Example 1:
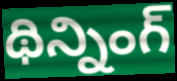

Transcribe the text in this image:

థిన్నింగ్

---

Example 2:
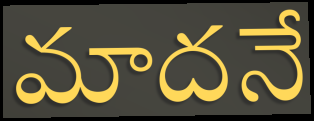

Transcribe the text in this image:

మాదనే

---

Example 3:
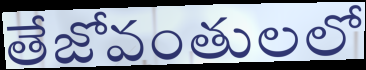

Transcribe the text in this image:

తేజోవంతులలో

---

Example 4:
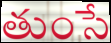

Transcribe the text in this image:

తుంసే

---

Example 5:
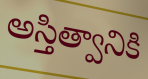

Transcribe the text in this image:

అస్తిత్వానికి